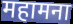
महामना